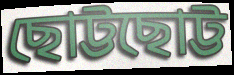
ছোট্টছোট্ট